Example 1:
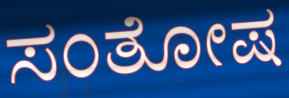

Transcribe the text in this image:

ಸಂತೋಷ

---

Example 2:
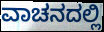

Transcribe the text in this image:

ವಾಚನದಲ್ಲಿ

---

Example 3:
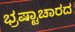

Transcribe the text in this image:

ಭ್ರಷ್ಟಾಚಾರದ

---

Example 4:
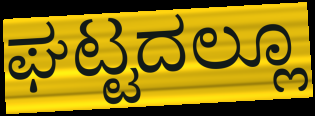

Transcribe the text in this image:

ಘಟ್ಟದಲ್ಲೂ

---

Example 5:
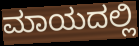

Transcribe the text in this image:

ಮಾಯದಲ್ಲಿ